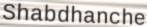
Shabdhanche